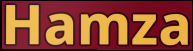
Hamza